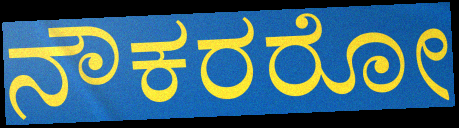
ನೌಕರರೋ